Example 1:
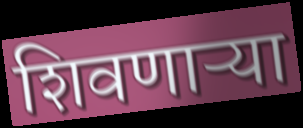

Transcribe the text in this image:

शिवणाऱ्या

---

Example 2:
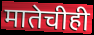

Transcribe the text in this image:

मातेचीही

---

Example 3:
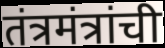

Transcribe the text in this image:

तंत्रमंत्रांची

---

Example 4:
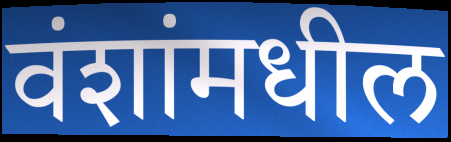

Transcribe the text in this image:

वंशांमधील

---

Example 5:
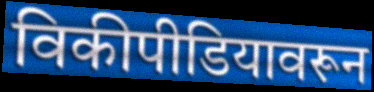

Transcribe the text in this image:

विकीपीडियावरून